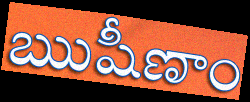
ఋషీణాం